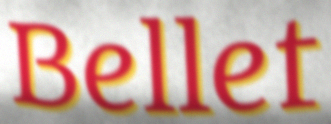
Bellet